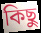
কিছু